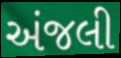
અંજલી